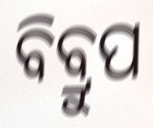
ବିବ୍ରୁପ